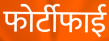
फोर्टीफाई